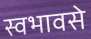
स्वभावसे